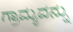
ಗ್ರಾಮ್ಯವನ್ನು